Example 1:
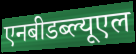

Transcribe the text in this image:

एनबीडब्ल्यूएल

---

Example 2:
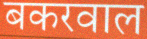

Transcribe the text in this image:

बकरवाल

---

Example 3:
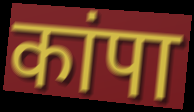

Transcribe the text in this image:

कांपा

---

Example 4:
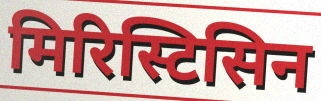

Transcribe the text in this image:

मिरिस्टिसिन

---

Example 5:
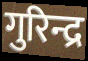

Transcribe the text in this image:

गुरिन्द्र